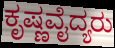
ಕೃಷ್ಣವೈದ್ಯರು